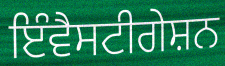
ਇੰਵੈਸਟੀਗੇਸ਼ਨ